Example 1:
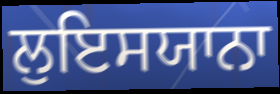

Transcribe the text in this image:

ਲੁਇਸਯਾਨਾ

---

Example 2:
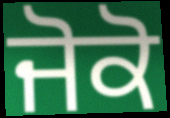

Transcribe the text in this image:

ਜੋਕੋ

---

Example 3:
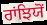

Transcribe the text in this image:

ਰਾਂਝਿਯੋਂ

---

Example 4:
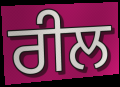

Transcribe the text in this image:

ਰੀਲ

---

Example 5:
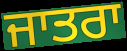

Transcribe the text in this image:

ਜਾਤਰਾ